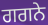
ਗਗਨੇ